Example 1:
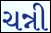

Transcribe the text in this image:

ચન્ની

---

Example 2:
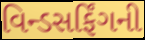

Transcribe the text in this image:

વિન્ડસર્ફિંગની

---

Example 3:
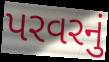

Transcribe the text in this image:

પરવરનું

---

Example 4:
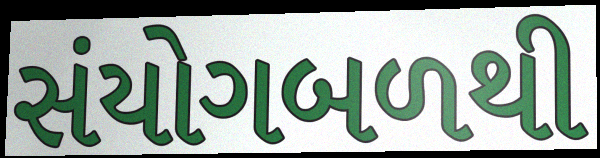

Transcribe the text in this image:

સંયોગબળથી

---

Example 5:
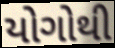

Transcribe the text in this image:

યોગોથી